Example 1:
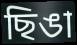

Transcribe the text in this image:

ছিঙা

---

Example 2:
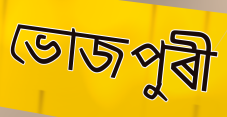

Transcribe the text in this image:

ভোজপুৰী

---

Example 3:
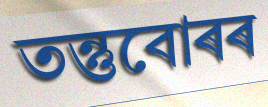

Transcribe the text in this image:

তন্তুবোৰৰ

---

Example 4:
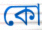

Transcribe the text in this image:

কো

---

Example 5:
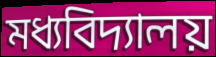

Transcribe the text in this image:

মধ্যবিদ্যালয়